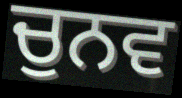
ਚੁਨਵ